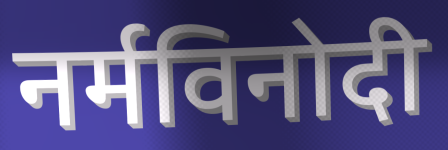
नर्मविनोदी